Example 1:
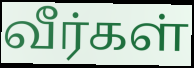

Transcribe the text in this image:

வீர்கள்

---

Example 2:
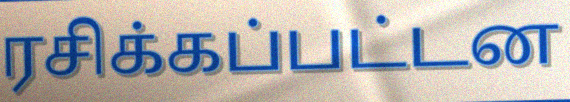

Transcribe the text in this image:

ரசிக்கப்பட்டன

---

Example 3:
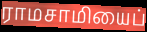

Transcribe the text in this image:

ராமசாமியைப்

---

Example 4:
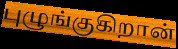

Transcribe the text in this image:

புழுங்குகிறான்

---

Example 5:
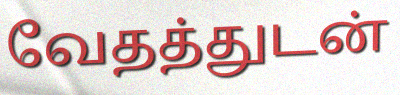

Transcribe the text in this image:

வேதத்துடன்